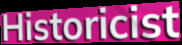
Historicist